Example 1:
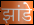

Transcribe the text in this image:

झांडे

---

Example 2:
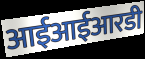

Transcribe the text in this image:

आईआईआरडी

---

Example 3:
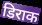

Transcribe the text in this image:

डिराक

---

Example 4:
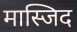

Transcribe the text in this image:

मास्जिद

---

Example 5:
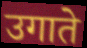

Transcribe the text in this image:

उगाते